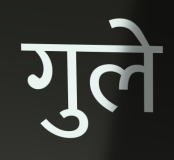
गुले